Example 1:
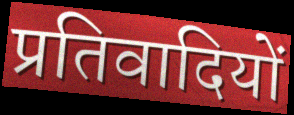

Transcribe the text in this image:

प्रतिवादियों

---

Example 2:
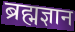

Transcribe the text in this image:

ब्रह्मज्ञान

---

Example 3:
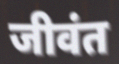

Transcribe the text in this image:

जीवंत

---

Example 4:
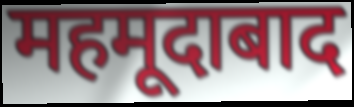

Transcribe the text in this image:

महमूदाबाद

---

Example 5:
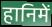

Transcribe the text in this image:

हानिमें